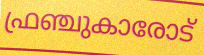
ഫ്രഞ്ചുകാരോട്